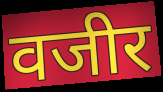
वजीर